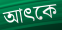
আৎকে